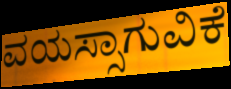
ವಯಸ್ಸಾಗುವಿಕೆ